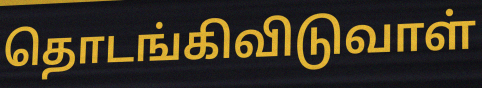
தொடங்கிவிடுவாள்